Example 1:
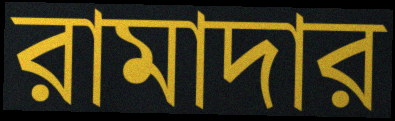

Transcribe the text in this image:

রামাদার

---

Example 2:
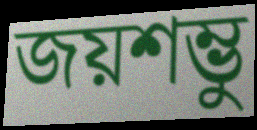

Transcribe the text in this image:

জয়শম্ভু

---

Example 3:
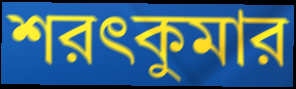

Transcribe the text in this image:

শরৎকুমার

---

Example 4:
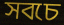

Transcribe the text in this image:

সবচে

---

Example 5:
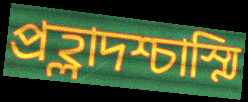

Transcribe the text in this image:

প্রহ্লাদশ্চাস্মি